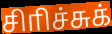
சிரிச்சுக்